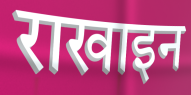
राखाइन